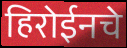
हिरोईनचे